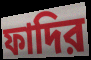
ফাদির